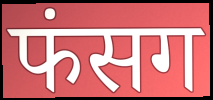
फंसग